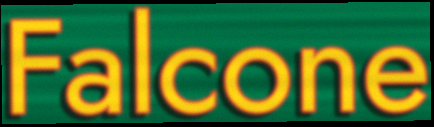
Falcone